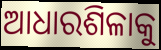
ଆଧାରଶିଳାକୁ